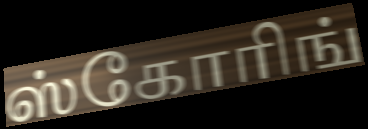
ஸ்கோரிங்